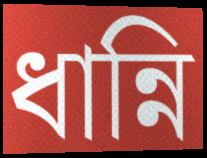
ধান্নি